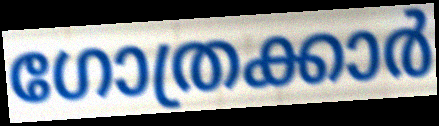
ഗോത്രക്കാർ